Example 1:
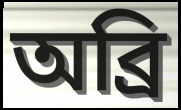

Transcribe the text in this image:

অব্ৰি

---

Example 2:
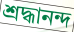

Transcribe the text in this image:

শ্ৰদ্ধানন্দ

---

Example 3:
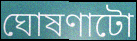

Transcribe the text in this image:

ঘোষণাটো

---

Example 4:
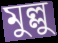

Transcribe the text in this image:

মুল্লু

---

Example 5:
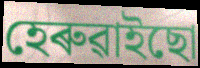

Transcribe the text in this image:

হেৰুৱাইছো